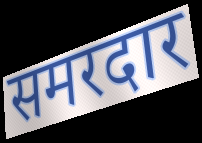
समरदार